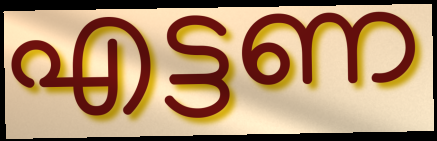
എട്ടണ